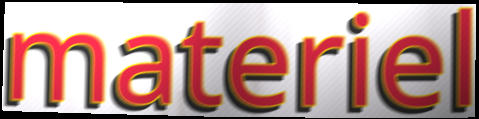
materiel